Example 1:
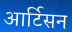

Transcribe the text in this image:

आर्टिसन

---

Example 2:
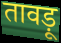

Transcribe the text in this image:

तावड़ू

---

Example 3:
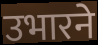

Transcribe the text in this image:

उभारने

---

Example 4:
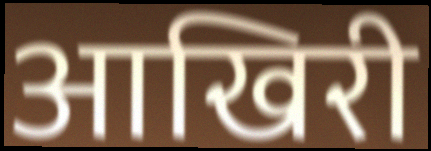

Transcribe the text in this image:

आखिरी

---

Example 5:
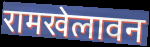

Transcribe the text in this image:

रामखेलावन